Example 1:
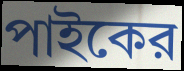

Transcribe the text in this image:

পাইকের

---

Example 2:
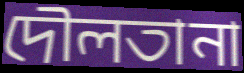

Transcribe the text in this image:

দৌলতানা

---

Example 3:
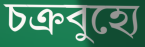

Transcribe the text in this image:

চক্রবুহ্যে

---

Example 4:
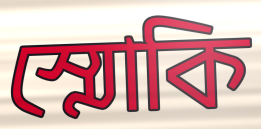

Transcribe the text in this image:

স্মোকি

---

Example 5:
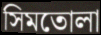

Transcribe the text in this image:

সিমতোলা